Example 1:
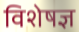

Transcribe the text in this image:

विशेषज्ञ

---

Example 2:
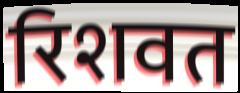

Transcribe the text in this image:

रिशवत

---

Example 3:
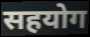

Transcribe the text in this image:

सहयोग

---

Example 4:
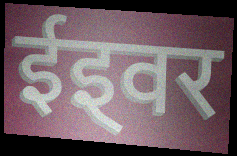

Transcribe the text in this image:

ईइ्वर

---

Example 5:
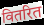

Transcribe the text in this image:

वितरित